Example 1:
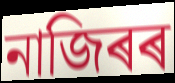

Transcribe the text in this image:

নাজিৰৰ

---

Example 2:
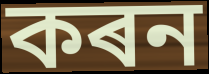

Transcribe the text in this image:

কৰন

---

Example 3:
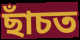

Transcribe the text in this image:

ছাঁচত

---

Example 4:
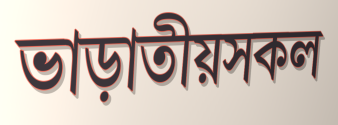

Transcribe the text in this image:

ভাড়াতীয়সকল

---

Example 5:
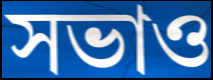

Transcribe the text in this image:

সভাও